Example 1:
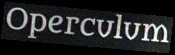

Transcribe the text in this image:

Operculum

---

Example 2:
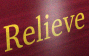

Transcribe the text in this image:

Relieve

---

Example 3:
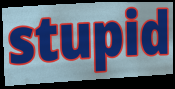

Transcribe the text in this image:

stupid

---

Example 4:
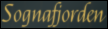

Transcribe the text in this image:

Sognafjorden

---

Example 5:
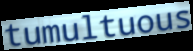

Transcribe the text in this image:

tumultuous